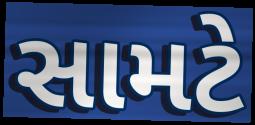
સામટે